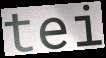
tei